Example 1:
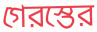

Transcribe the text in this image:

গেরস্তের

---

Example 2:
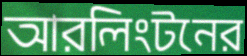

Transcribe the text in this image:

আরলিংটনের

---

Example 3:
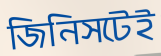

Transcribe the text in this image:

জিনিসটেই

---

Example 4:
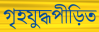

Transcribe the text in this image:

গৃহযুদ্ধপীড়িত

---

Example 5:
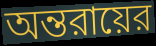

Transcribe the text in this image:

অন্তরায়ের